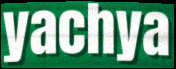
yachya